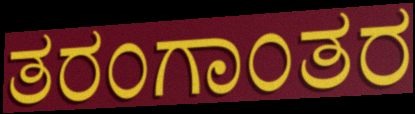
ತರಂಗಾಂತರ